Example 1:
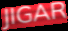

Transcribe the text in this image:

JIGAR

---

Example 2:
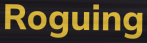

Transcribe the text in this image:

Roguing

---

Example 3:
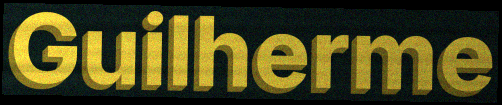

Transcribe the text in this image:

Guilherme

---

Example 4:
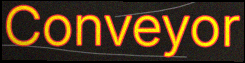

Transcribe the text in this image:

Conveyor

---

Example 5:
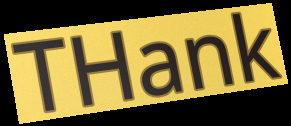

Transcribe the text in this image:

THank